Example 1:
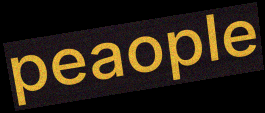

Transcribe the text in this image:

peaople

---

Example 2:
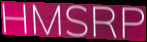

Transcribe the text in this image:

HMSRP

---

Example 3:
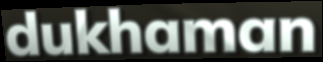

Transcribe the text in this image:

dukhaman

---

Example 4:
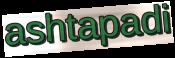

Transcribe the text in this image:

ashtapadi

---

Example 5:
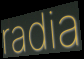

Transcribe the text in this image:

radia